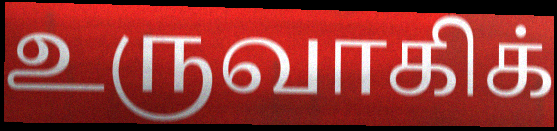
உருவாகிக்